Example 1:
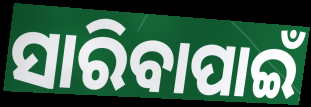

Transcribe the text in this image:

ସାରିବାପାଇଁ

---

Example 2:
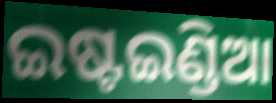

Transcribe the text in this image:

ଇଷ୍ଟଇଣ୍ଡିଆ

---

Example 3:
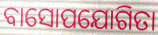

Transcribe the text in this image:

ବାସୋପଯୋଗିତା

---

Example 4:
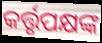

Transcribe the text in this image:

କର୍ତ୍ତୃପକ୍ଷଙ୍କ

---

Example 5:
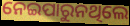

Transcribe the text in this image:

ନେଇପାରୁନଥିଲେ